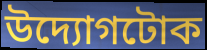
উদ্যোগটোক